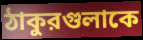
ঠাকুরগুলাকে